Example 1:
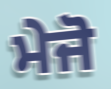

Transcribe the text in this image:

ਮੇਜੋ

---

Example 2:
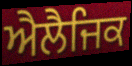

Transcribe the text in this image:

ਐਲੈਜਿਕ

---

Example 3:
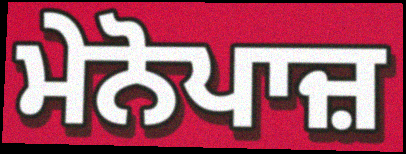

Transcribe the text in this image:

ਮੇਨੋਪਾਜ਼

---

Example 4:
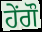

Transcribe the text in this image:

ਹੇਂਗੌ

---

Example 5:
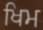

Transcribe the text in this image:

ਖਿਮ